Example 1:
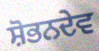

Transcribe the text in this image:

ਸ਼ੋਭਨਦੇਵ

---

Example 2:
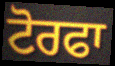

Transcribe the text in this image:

ਟੋਰਫਾ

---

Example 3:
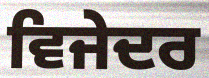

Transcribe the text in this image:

ਵਿਜੇਦਰ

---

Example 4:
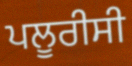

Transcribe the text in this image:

ਪਲੂਰੀਸੀ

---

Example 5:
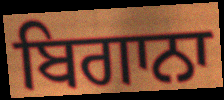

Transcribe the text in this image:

ਬਿਗਾਨਾ